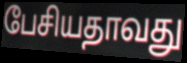
பேசியதாவது